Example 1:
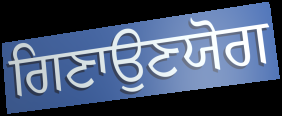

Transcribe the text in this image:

ਗਿਣਾਉਣਯੋਗ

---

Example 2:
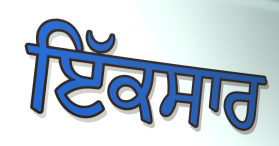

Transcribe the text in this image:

ਇੱਕਸਾਰ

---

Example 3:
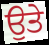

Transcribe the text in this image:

ਉਤੇ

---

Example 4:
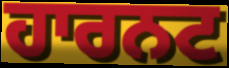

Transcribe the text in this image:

ਹਾਰਨਟ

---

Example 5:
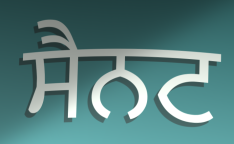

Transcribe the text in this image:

ਸੈਨਟ